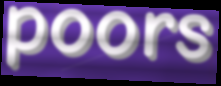
poors